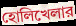
হোলিখেলার